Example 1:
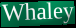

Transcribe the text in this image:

Whaley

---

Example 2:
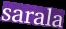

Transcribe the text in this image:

sarala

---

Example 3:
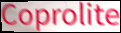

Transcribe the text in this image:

Coprolite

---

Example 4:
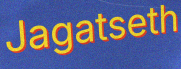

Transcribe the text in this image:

Jagatseth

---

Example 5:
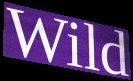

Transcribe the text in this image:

Wild